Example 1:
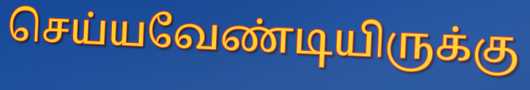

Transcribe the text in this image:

செய்யவேண்டியிருக்கு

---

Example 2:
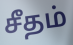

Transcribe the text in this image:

சீதம்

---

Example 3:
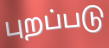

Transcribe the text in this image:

புறப்படு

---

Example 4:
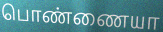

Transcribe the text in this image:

பொண்ணையா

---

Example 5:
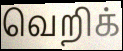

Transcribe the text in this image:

வெறிக்